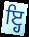
ਇ੍ਹ